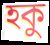
হকু